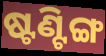
ଷ୍ଟଣ୍ଟିଙ୍ଗ